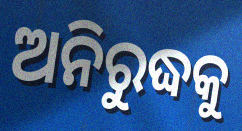
ଅନିରୁଦ୍ଧକୁ